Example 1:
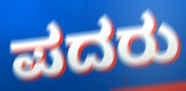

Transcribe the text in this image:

ಪದರು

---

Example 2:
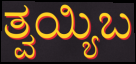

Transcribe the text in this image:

ತ್ವಯ್ಯಿಬ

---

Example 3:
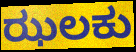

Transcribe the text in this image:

ಝಲಕು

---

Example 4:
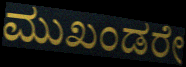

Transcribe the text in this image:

ಮುಖಂಡರೇ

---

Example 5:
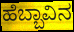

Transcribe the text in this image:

ಹೆಬ್ಬಾವಿನ